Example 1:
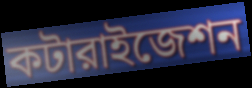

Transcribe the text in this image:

কটারাইজেশন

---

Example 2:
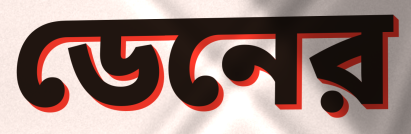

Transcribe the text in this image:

ডেনের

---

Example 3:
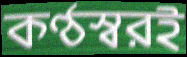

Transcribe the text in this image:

কণ্ঠস্বরই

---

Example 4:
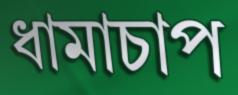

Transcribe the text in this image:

ধামাচাপ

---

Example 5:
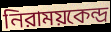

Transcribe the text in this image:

নিরাময়কেন্দ্র